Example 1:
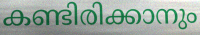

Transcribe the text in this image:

കണ്ടിരിക്കാനും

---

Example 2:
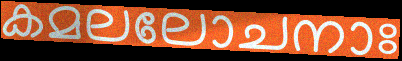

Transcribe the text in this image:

കമലലോചനാഃ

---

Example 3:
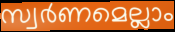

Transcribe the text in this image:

സ്വർണമെല്ലാം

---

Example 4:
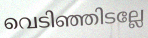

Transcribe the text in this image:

വെടിഞ്ഞിടല്ലേ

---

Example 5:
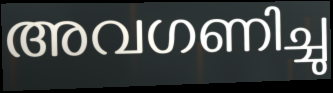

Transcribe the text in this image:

അവഗണിച്ചു